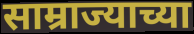
साम्राज्याच्या